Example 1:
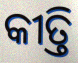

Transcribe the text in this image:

କୀତ୍ତି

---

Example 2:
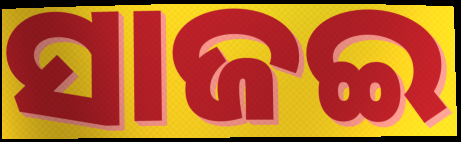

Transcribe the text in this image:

ସାଜଇ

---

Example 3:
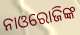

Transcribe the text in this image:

ନାଓରୋଜିଙ୍କ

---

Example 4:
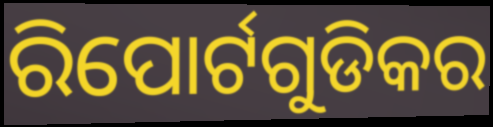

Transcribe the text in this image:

ରିପୋର୍ଟଗୁଡିକର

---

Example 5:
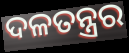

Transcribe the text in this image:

ଦଳତନ୍ତ୍ରର